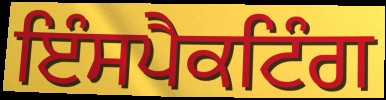
ਇੰਸਪੈਕਟਿੰਗ